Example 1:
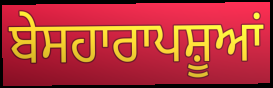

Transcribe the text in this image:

ਬੇਸਹਾਰਾਪਸ਼ੂਆਂ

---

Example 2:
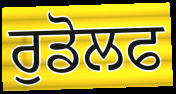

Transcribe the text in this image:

ਰੁਡੋਲਫ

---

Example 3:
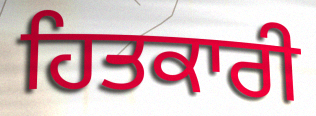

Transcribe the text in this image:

ਹਿਤਕਾਰੀ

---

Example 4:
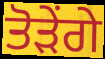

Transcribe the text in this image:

ਤੋੜੇਂਗੇ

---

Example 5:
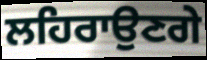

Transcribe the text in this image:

ਲਹਿਰਾਉਣਗੇ